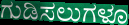
ಗುಡಿಸಲುಗಳೂ